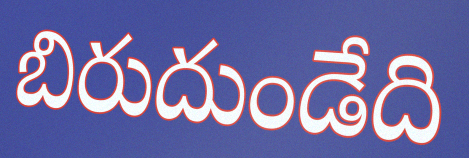
బిరుదుండేది